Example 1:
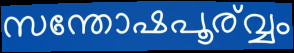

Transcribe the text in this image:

സന്തോഷപൂര്വ്വം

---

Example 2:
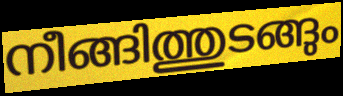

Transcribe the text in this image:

നീങ്ങിത്തുടങ്ങും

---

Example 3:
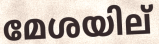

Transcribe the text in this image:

മേശയില്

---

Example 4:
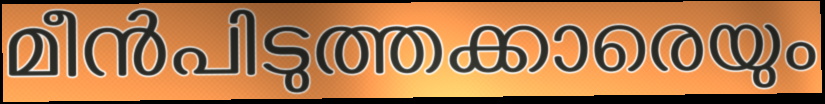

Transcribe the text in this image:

മീൻപിടുത്തക്കാരെയും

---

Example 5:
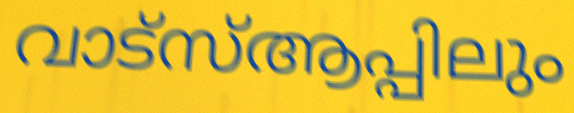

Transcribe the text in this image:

വാട്സ്ആപ്പിലും